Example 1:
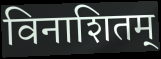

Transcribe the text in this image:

विनाशितम्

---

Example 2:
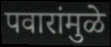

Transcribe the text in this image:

पवारांमुळे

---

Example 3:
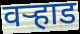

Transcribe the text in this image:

वर्‍हाड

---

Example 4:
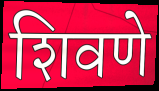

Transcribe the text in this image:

शिवणे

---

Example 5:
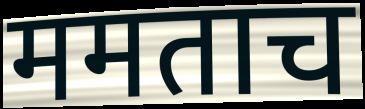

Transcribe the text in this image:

ममताच